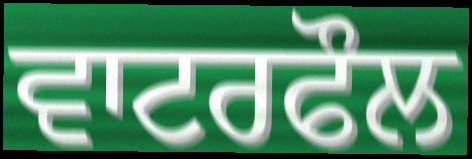
ਵਾਟਰਫੌਲ